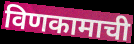
विणकामाची